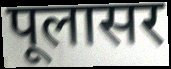
पूलासर